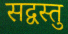
सद्वस्तु